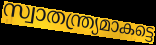
സ്വാതന്ത്ര്യമാകട്ടെ